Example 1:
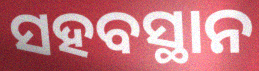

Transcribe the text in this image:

ସହବସ୍ଥାନ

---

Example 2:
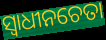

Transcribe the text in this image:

ସ୍ୱାଧୀନଚେତା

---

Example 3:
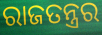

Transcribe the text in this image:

ରାଜତନ୍ତ୍ରର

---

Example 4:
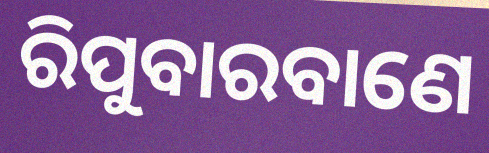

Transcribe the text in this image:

ରିପୁବାରବାଣେ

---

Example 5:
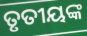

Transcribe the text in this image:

ତୃତୀୟଙ୍କ